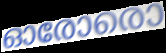
ഓരോരൊ